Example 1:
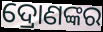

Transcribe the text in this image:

ଦ୍ରୋଣଙ୍କର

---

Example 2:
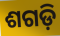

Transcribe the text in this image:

ଶଗଡ଼ି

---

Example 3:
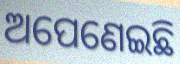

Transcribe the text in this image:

ଅପେଣେଇଛି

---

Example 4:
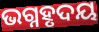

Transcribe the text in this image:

ଭଗ୍ନହୃଦୟ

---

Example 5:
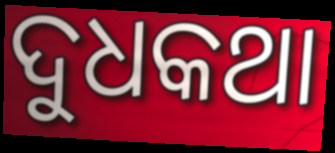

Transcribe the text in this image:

ଦୁଧକଥା